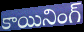
కాయినింగ్